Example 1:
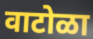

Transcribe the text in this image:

वाटोळा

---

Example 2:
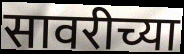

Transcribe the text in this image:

सावरीच्या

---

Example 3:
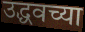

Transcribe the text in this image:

उद्धवच्या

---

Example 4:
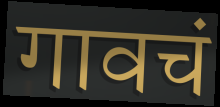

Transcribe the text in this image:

गावचं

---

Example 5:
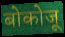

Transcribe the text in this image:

बोकोजू